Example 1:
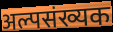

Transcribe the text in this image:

अल्पसंख्यक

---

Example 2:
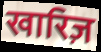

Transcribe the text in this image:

खारिज़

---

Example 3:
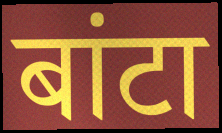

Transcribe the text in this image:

बांटा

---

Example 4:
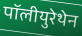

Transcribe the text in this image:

पॉलीयुरेथेन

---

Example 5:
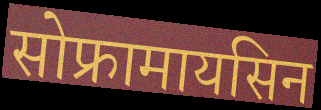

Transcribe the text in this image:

सोफ्रामायसिन